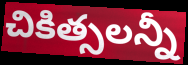
చికిత్సలన్నీ